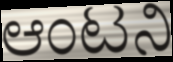
ಆಂಟನಿ